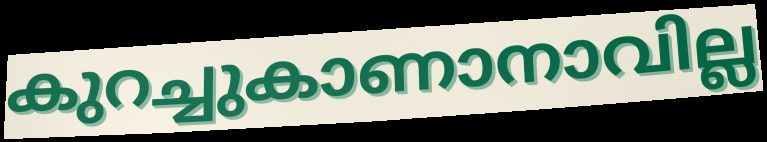
കുറച്ചുകാണാനാവില്ല